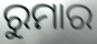
ରୁମାର